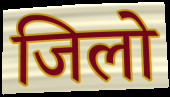
जिलो